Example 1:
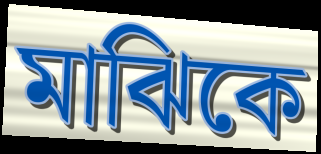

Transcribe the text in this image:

মাঝিকে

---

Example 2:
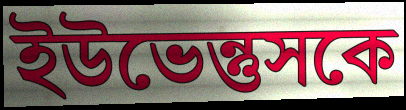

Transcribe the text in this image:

ইউভেন্তুসকে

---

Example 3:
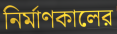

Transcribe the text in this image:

নির্মাণকালের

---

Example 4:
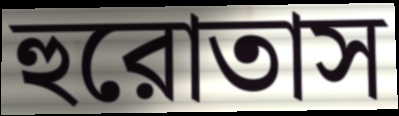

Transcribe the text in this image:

হুরোতাস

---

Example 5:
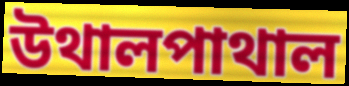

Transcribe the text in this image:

উথালপাথাল